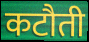
कटौती